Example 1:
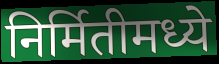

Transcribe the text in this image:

निर्मितीमध्ये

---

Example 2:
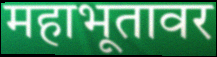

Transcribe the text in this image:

महाभूतावर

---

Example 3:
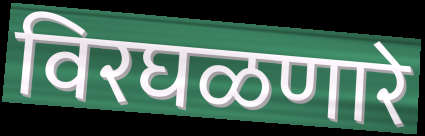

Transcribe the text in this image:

विरघळणारे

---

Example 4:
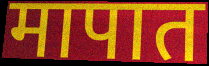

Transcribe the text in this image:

मापात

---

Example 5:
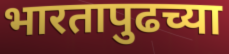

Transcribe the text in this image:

भारतापुढच्या